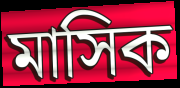
মাসিক